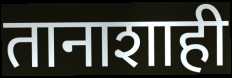
तानाशाही